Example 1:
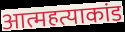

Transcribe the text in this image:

आत्महत्याकांड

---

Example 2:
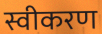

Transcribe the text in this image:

स्वीकरण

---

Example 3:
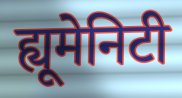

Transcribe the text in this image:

ह्यूमेनिटी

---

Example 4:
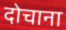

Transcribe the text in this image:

दोचाना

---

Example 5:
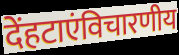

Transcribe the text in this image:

देंहटाएंविचारणीय